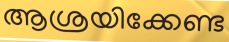
ആശ്രയിക്കേണ്ട